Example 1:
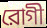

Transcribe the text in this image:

রোগী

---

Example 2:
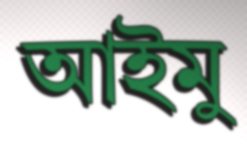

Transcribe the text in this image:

আইমু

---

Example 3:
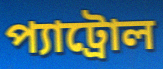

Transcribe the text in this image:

প্যাট্রোল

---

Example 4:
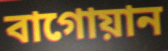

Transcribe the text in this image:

বাগোয়ান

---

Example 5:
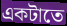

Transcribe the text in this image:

একটাতে